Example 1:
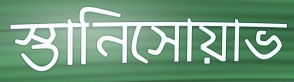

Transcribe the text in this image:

স্তানিসোয়াভ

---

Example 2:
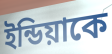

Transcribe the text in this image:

ইন্ডিয়াকে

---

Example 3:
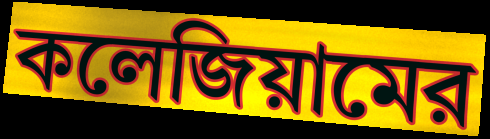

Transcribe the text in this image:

কলেজিয়ামের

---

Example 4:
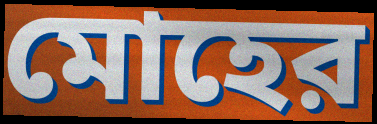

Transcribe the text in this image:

মোহের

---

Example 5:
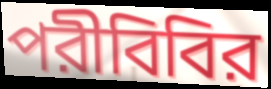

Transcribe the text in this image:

পরীবিবির